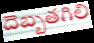
దెబ్బతగిలి